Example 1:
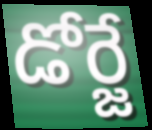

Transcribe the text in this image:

డోర్జే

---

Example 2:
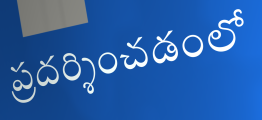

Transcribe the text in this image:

ప్రదర్శించడంలో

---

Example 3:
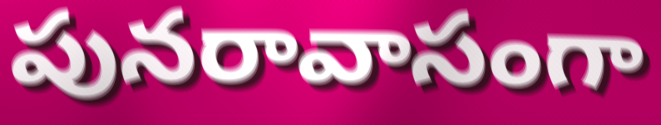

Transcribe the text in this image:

పునరావాసంగా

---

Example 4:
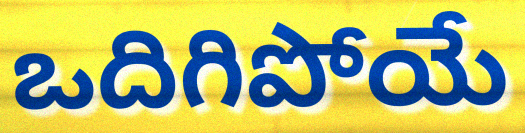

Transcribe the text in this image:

ఒదిగిపోయే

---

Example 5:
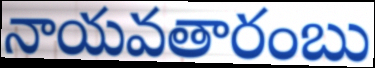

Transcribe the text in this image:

నాయవతారంబు